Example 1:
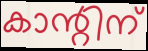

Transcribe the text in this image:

കാന്റിന്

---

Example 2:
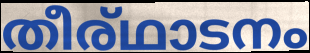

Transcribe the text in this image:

തീര്ഥാടനം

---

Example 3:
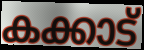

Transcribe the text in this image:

കക്കാട്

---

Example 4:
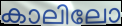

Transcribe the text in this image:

കാലിലോ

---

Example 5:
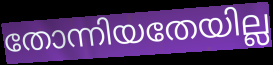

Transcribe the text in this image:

തോന്നിയതേയില്ല